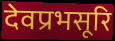
देवप्रभसूरि